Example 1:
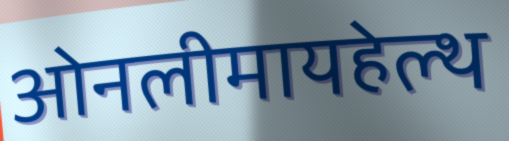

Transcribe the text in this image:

ओनलीमायहेल्थ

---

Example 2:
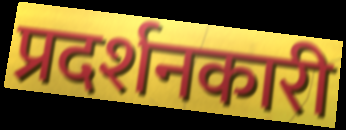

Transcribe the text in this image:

प्रदर्शनकारी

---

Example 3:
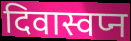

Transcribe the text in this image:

दिवास्‍वप्‍न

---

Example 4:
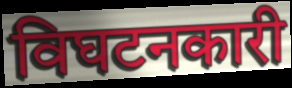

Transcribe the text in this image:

विघटनकारी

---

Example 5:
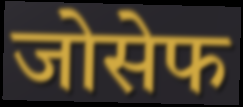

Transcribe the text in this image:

जोसेफ